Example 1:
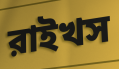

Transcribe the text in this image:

রাইখস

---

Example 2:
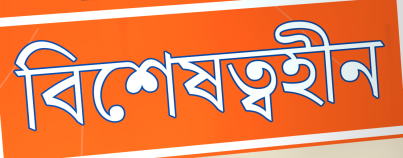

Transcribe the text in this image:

বিশেষত্বহীন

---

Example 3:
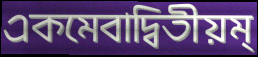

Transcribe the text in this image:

একমেবাদ্বিতীয়ম্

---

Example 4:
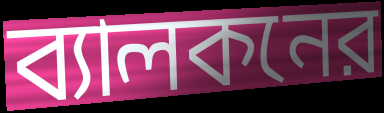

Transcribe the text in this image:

ব্যালকনের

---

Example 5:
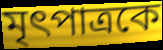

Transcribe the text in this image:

মৃৎপাত্রকে